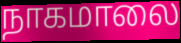
நாகமாலை